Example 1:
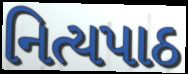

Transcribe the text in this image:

નિત્યપાઠ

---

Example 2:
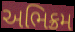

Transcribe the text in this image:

અભિક્રમ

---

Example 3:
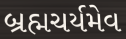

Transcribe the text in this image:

બ્રહ્મચર્યમેવ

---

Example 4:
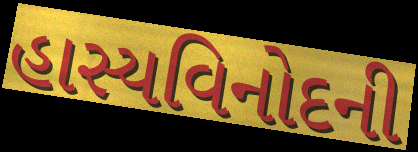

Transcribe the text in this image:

હાસ્યવિનોદની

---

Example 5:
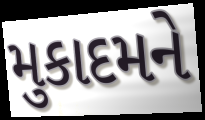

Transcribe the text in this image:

મુકાદમને